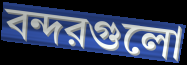
বন্দরগুলো